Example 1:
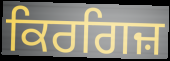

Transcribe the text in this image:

ਕਿਰਗਿਜ਼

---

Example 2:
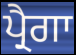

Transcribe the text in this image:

ਪ੍ਰੈਗਾ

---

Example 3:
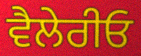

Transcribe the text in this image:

ਵੈਲੇਰੀਓ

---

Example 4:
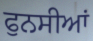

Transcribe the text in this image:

ਫੁਨਸੀਆਂ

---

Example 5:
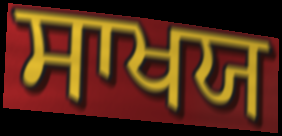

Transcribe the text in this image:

ਸਾਖਯ